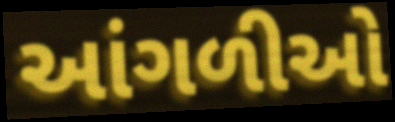
આંગળીઓ